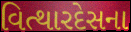
વિત્થારદેસના